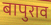
बापुराव